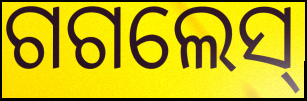
ଗଗଲେସ୍